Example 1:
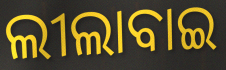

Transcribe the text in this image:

ଲୀଲାବାଇ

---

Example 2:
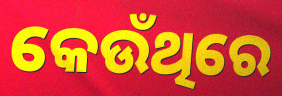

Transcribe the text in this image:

କେଉଁଥିରେ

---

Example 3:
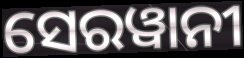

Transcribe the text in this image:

ସେରୱାନୀ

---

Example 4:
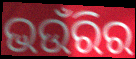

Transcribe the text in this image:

ଭଉଁରିର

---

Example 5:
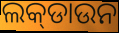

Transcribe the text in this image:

ଲକ୍‍ଡାଉନ